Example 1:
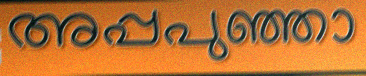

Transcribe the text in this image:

അപ്പപുഞ്ഞാ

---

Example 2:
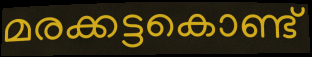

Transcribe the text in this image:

മരക്കട്ടകൊണ്ട്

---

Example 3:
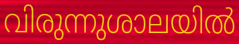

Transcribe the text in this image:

വിരുന്നുശാലയിൽ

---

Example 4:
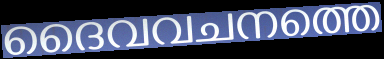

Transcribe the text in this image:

ദൈവവചനത്തെ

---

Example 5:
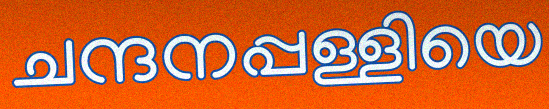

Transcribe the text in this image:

ചന്ദനപ്പള്ളിയെ